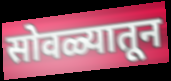
सोवळ्यातून